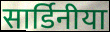
सार्डिनीया